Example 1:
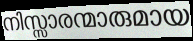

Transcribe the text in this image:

നിസ്സാരന്മാരുമായ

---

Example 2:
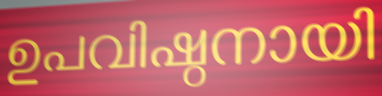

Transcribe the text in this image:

ഉപവിഷ്ഠനായി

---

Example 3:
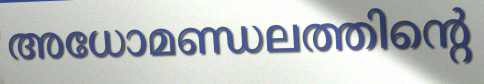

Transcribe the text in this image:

അധോമണ്ഡലത്തിന്റെ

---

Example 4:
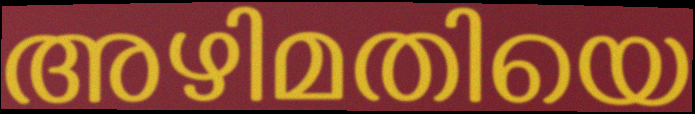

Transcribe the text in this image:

അഴിമതിയെ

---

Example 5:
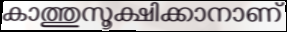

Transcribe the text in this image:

കാത്തുസൂക്ഷിക്കാനാണ്